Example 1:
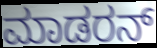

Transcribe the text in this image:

ಮಾಡರನ್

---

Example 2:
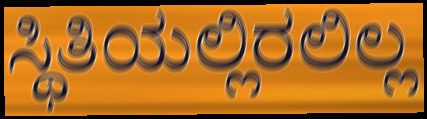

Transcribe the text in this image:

ಸ್ಥಿತಿಯಲ್ಲಿರಲಿಲ್ಲ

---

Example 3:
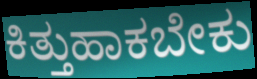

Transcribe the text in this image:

ಕಿತ್ತುಹಾಕಬೇಕು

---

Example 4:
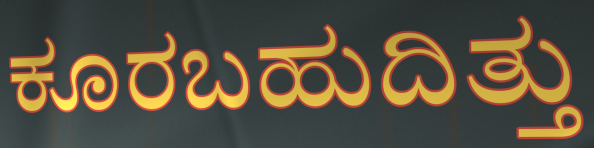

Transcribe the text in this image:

ಕೂರಬಹುದಿತ್ತು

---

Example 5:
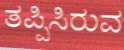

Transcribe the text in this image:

ತಪ್ಪಿಸಿರುವ